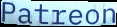
Patreon